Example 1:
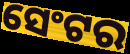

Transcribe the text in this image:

ସେଂଟର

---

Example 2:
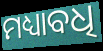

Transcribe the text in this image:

ମଧ୍ୟାବଧି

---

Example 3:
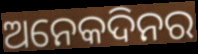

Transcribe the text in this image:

ଅନେକଦିନର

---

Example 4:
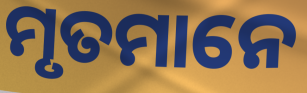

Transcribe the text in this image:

ମୃତମାନେ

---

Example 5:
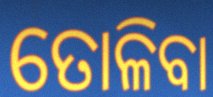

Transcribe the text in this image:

ତୋଳିବା